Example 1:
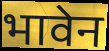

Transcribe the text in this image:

भावेन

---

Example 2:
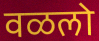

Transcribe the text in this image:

वळलो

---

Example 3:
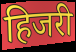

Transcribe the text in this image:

हिजरी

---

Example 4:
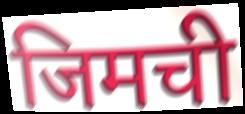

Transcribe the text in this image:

जिमची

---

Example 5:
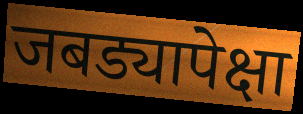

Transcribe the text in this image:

जबड्यापेक्षा